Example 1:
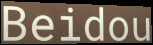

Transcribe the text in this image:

Beidou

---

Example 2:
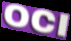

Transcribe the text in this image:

OCI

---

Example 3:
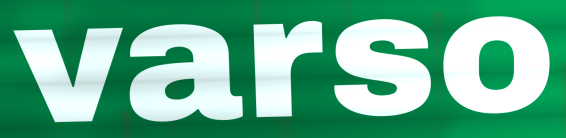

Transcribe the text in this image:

varso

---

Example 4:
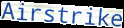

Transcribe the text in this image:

Airstrike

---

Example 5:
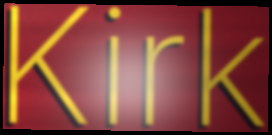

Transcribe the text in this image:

Kirk